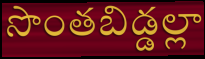
సొంతబిడ్డల్లా